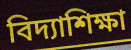
বিদ্যাশিক্ষা